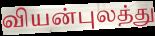
வியன்புலத்து